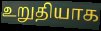
உறுதியாக